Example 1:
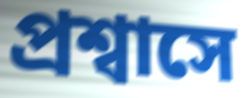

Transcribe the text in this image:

প্রশ্বাসে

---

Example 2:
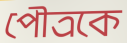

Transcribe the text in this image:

পৌত্রকে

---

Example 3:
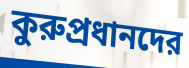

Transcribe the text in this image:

কুরুপ্রধানদের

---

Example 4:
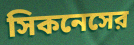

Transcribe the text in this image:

সিকনেসের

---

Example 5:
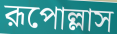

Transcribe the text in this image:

রূপোল্লাস